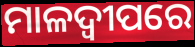
ମାଳଦ୍ବୀପରେ